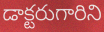
డాక్టరుగారిని